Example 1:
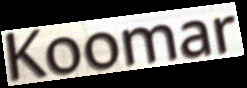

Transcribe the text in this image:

Koomar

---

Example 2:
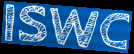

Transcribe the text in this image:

ISWC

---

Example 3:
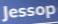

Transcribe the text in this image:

Jessop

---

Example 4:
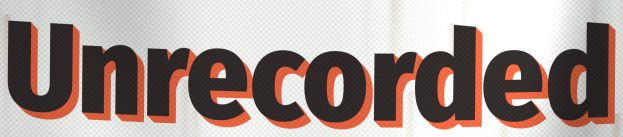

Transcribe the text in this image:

Unrecorded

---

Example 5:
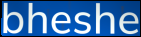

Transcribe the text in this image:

bheshe